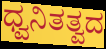
ಧ್ವನಿತತ್ವದ